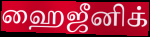
ஹைஜீனிக்